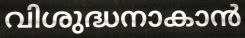
വിശുദ്ധനാകാൻ